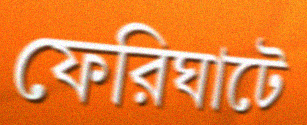
ফেরিঘাটে